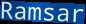
Ramsar